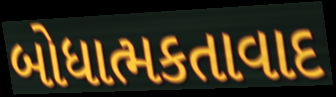
બોધાત્મકતાવાદ